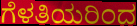
ಗೆಳತಿಯರಿಂದ